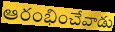
ఆరంభించేవాడు